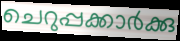
ചെറുപ്പക്കാർക്കു